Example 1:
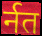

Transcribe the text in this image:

र्नत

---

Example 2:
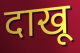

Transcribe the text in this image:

दाखू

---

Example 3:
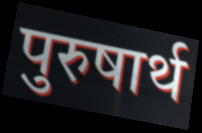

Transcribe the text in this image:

पुरुषार्थ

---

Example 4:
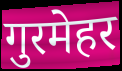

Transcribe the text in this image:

गुरमेहर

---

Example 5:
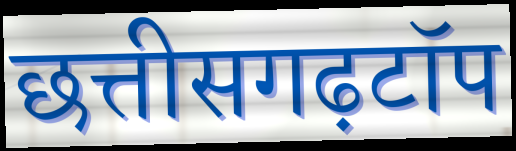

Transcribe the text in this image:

छत्तीसगढ़टॉप